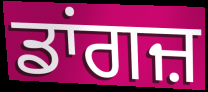
ਡਾਂਗਜ਼